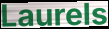
Laurels